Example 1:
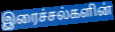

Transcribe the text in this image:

இரைச்சல்களின்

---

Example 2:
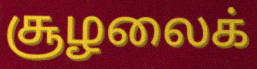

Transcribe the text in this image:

சூழலைக்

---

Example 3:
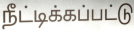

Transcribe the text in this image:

நீட்டிக்கப்பட்டு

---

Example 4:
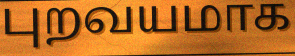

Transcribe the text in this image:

புறவயமாக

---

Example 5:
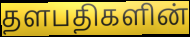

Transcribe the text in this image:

தளபதிகளின்